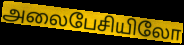
அலைபேசியிலோ